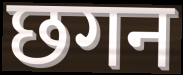
छगन